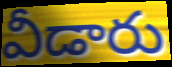
వీడారు